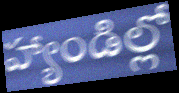
హ్యాండిల్లో